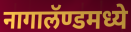
नागालॅण्डमध्ये